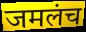
जमलंच